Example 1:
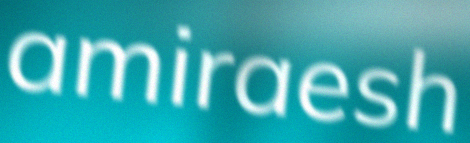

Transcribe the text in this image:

amiraesh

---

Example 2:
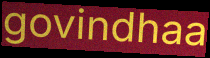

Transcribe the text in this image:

govindhaa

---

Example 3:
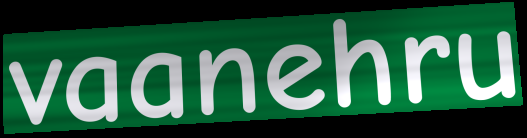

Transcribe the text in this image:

vaanehru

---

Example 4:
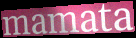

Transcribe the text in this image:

mamata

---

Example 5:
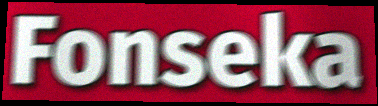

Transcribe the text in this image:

Fonseka